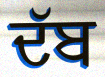
ਦੱਬ